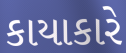
કાયાકારે